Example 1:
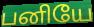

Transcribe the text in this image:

பனியே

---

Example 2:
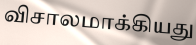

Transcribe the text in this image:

விசாலமாக்கியது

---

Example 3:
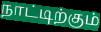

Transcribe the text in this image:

நாட்டிற்கும்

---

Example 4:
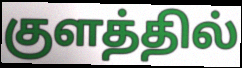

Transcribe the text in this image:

குளத்தில்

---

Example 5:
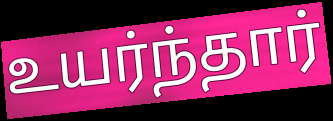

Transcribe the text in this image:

உயர்ந்தார்